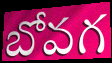
బోవగ